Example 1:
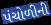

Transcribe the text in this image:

પંચોળીની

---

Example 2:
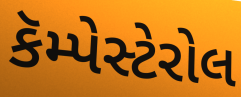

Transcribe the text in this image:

કૅમ્પેસ્ટેરોલ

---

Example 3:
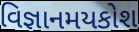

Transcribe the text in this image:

વિજ્ઞાનમયકોશ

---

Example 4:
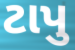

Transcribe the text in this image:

ટાપુ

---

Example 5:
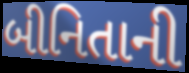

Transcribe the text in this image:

બીનિતાની